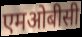
एमओबीसी